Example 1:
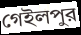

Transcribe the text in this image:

গেইলপুর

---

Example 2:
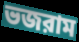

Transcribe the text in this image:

ভজরাম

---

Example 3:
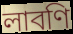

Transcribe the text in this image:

লাবণি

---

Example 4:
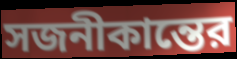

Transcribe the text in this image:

সজনীকান্তের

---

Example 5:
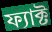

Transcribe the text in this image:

ফ্যাক্ট